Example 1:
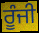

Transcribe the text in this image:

ਰੂੰਜੀ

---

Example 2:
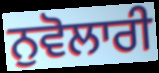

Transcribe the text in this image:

ਨੁਵੋਲਾਰੀ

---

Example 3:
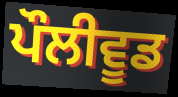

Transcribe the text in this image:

ਪੌਲੀਵੂਡ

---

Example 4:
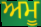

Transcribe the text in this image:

ਅਮੂ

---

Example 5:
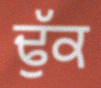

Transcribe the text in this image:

ਢੁੱਕ